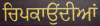
ਚਿਪਕਾਉਂਦੀਆਂ